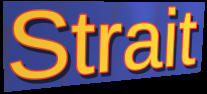
Strait